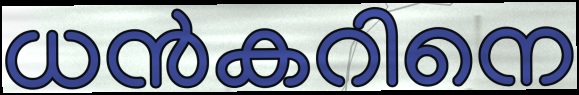
ധൻകറിനെ